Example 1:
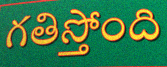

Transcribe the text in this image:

గతిస్తోంది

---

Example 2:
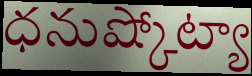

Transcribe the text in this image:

ధనుష్కోట్యా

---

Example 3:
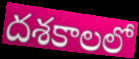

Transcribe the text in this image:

దశకాలలో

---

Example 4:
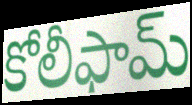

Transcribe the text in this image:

కోలీఫామ్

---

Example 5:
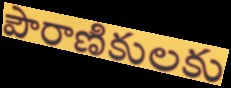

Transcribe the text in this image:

పౌరాణికులకు